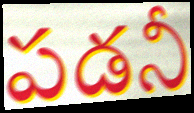
పడనీ